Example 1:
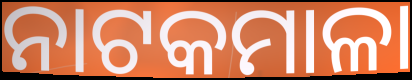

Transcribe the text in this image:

ନାଟକମାଳା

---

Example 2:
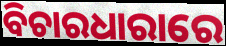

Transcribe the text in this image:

ବିଚାରଧାରାରେ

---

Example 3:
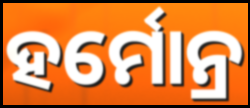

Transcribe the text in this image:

ହର୍ମୋନ୍ର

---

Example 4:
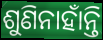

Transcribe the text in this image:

ଶୁଣିନାହାଁନ୍ତି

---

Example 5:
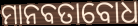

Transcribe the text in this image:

ମାନବତାବୋଧ